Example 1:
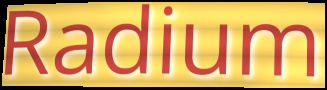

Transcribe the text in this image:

Radium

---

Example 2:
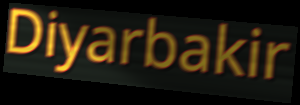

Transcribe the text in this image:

Diyarbakir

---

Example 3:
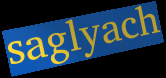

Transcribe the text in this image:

saglyach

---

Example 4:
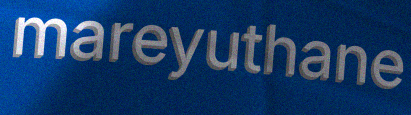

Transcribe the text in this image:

mareyuthane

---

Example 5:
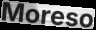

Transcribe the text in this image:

Moreso